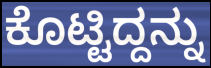
ಕೊಟ್ಟಿದ್ದನ್ನು